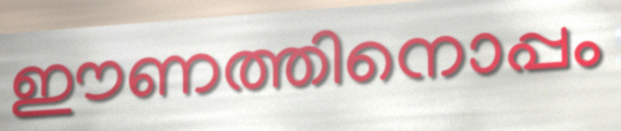
ഈണത്തിനൊപ്പം